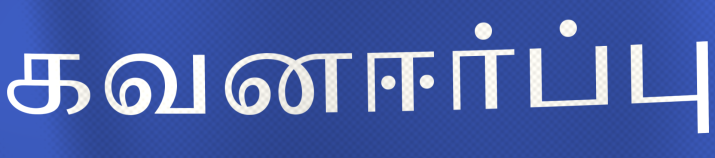
கவனஈர்ப்பு